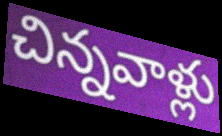
చిన్నవాళ్లు